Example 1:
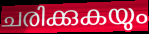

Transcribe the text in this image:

ചരിക്കുകയും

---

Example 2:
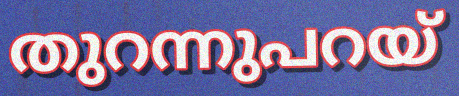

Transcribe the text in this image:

തുറന്നുപറയ്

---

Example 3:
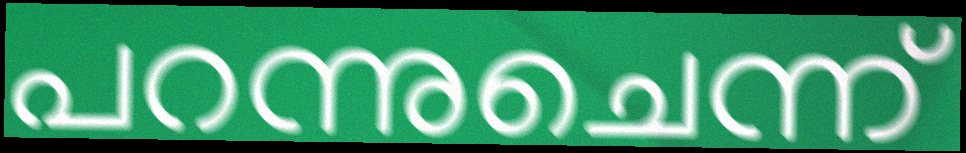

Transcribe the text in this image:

പറന്നുചെന്ന്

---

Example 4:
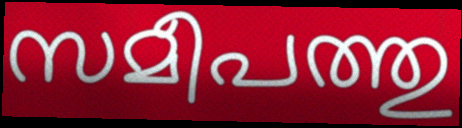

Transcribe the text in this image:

സമീപത്തു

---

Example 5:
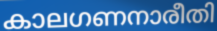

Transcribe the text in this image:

കാലഗണനാരീതി